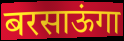
बरसाऊंगा